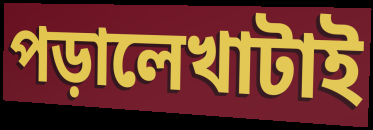
পড়ালেখাটাই